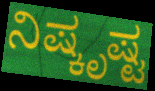
ನಿಷ್ಕೃಷ್ಟ